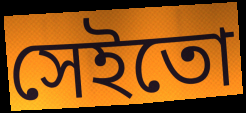
সেইতো